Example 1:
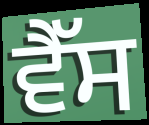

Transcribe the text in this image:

ਵੈੱਸ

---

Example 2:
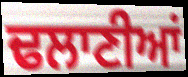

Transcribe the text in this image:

ਢਲਾਣੀਆਂ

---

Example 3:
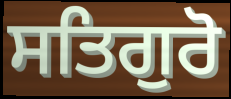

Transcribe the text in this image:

ਸਤਿਗੁਰੋ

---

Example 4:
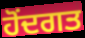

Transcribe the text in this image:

ਹੋਂਦਗਤ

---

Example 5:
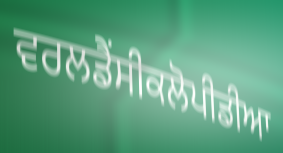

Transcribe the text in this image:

ਵਰਲਡੈਂਸੀਕਲੋਪੀਡੀਆ